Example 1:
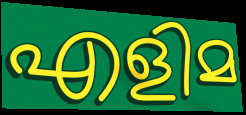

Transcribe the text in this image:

എളിമ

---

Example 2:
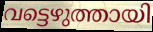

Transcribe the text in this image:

വട്ടെഴുത്തായി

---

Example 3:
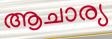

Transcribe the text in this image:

ആചാര്യ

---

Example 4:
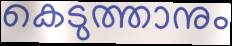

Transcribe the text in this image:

കെടുത്താനും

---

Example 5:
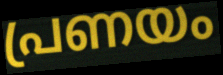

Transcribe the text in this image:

പ്രണയം